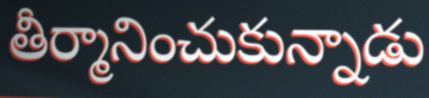
తీర్మానించుకున్నాడు